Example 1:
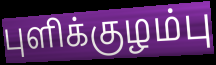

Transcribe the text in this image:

புளிக்குழம்பு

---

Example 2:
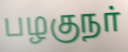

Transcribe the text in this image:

பழகுநர்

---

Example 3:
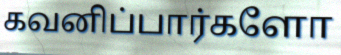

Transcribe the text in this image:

கவனிப்பார்களோ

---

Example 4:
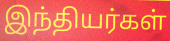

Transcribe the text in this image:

இந்தியர்கள்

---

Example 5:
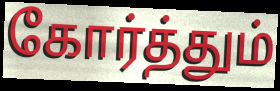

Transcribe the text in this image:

கோர்த்தும்